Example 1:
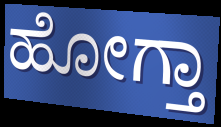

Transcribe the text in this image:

ಹೋಗ್ತಾ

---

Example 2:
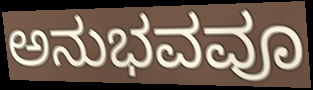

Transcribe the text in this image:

ಅನುಭವವೂ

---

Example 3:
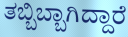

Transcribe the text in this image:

ತಬ್ಬಿಬ್ಬಾಗಿದ್ದಾರೆ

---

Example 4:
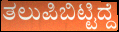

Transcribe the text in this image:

ತಲುಪಿಬಿಟ್ಟಿದ್ದೆ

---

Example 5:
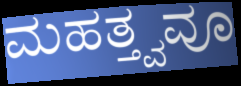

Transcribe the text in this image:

ಮಹತ್ತ್ವವೂ